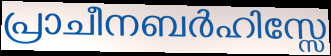
പ്രാചീനബർഹിസ്സേ